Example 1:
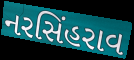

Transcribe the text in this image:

નરસિંહરાવ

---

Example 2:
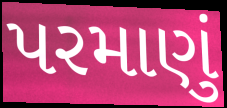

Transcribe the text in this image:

પરમાણું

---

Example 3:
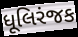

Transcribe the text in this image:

ધૂલિરંજક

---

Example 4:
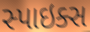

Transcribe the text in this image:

સ્પાઇક્સ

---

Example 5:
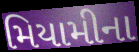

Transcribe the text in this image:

મિયામીના